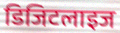
डिजिटलाइज